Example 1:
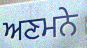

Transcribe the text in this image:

ਅਣਮਨੇ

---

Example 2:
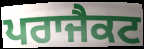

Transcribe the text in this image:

ਪਰਾਜੈਕਟ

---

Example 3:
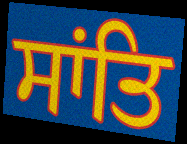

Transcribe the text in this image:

ਸਾਂਤਿ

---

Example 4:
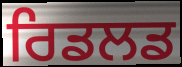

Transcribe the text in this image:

ਰਿਡਲਡ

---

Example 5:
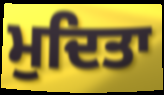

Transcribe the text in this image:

ਮੁਦਿਤਾ